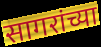
सागरांच्या